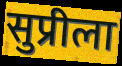
सुप्रीला